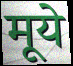
मूये